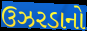
ઉઝરડાનો